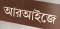
আরআইজে